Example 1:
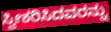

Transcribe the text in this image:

ಸ್ವೀಕರಿಸಿದವರನ್ನು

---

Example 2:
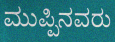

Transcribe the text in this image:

ಮುಪ್ಪಿನವರು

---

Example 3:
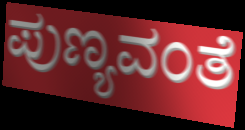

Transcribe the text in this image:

ಪುಣ್ಯವಂತೆ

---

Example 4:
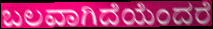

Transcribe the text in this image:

ಬಲವಾಗಿದೆಯೆಂದರೆ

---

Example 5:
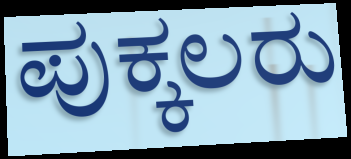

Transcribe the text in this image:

ಪುಕ್ಕಲರು